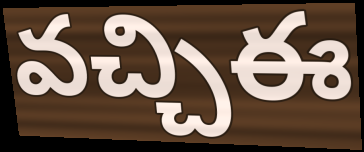
వచ్చిఈ